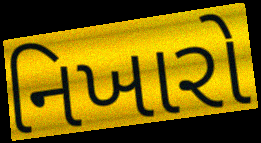
નિખારો